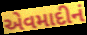
એવમાદીનં